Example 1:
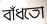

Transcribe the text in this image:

বাঁধতো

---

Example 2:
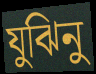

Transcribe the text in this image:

যুঝিনু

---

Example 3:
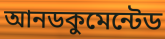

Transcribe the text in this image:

আনডকুমেন্টেড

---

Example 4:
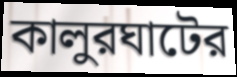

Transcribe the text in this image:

কালুরঘাটের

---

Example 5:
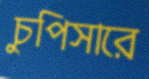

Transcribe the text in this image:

চুপিসারে